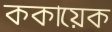
ককায়েক